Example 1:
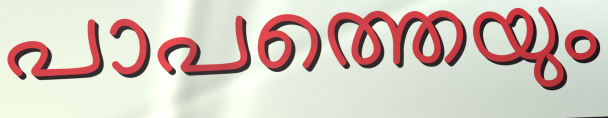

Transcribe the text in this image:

പാപത്തെയും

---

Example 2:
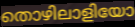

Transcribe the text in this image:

തൊഴിലാളിയോ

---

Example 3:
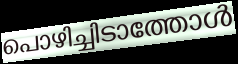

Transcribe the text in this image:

പൊഴിച്ചിടാത്തോൾ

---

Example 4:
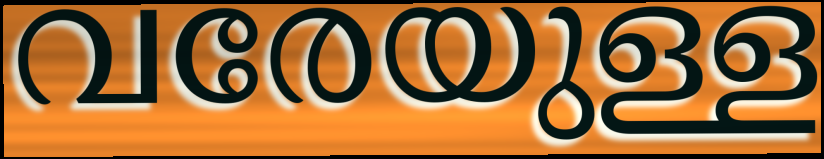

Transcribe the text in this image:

വരേയുള്ള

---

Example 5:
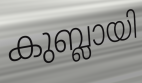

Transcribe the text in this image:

കുബ്ലായി